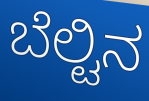
ಬೆಲ್ಟಿನ